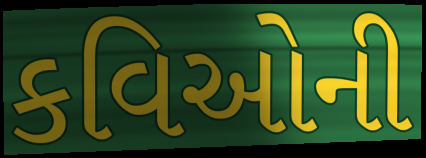
કવિઓની